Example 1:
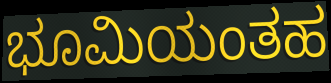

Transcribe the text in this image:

ಭೂಮಿಯಂತಹ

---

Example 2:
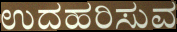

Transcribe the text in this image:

ಉದಹರಿಸುವ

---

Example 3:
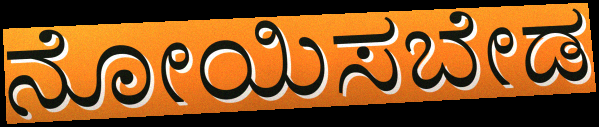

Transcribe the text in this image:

ನೋಯಿಸಬೇಡ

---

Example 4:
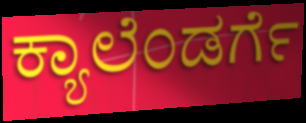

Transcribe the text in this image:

ಕ್ಯಾಲೆಂಡರ್ಗೆ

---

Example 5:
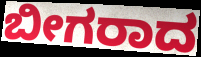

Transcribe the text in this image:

ಬೀಗರಾದ